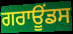
ਗਰਾਊਂਡਸ